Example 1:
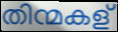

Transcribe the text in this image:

തിന്മകള്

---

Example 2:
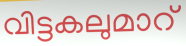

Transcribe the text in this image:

വിട്ടകലുമാറ്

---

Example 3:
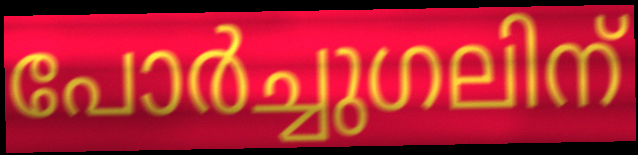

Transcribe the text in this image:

പോർച്ചുഗലിന്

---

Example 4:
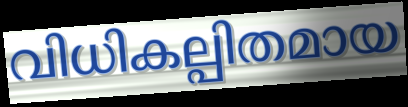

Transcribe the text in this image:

വിധികല്പിതമായ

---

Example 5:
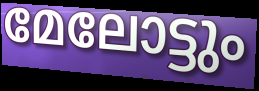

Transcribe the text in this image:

മേലോട്ടും